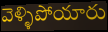
వెళ్ళిపోయారు